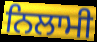
ਨਿਲਾਮੀ